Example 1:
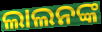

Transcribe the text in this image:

ଲାଲନଙ୍କ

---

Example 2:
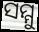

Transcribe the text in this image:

ସମ୍ମୁ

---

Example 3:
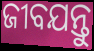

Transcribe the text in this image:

ଜୀବଯନ୍ତୁ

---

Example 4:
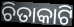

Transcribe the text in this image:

ଚିତାକାଟି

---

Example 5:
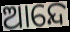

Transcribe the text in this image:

ଆନ୍ଦେ